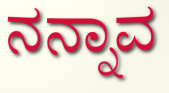
ನನ್ನಾವ